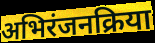
अभिरंजनक्रिया